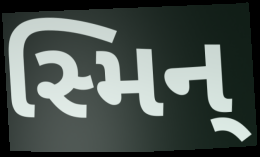
સ્મિન્